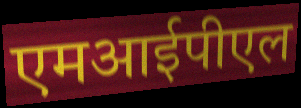
एमआईपीएल